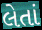
લેતાં